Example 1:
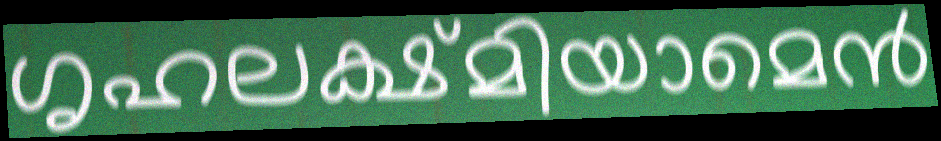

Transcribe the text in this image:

ഗൃഹലക്ഷ്മിയാമെൻ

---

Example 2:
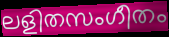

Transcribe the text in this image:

ലളിതസംഗീതം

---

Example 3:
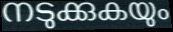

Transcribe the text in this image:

നടുക്കുകയും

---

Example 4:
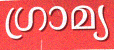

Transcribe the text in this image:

ഗ്രാമ്യ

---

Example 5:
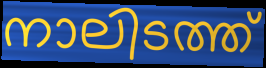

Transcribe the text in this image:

നാലിടത്ത്